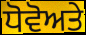
ਧੋਵੋਅਤੇ